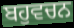
ਬਹੁਵਚਨ